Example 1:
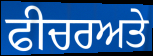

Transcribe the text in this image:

ਫੀਚਰਅਤੇ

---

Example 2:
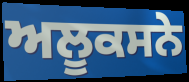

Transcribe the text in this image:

ਅਲੂਕਸਨੇ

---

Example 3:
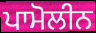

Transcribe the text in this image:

ਪਾਮੋਲੀਨ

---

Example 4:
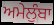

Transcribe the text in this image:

ਅਮੇਲੁੰਬਾ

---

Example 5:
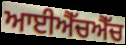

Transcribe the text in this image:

ਆਈਐੱਚਐੱਚ